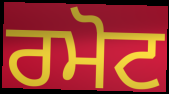
ਰਮੋਟ